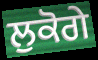
ਲੁਕੋਗੇ